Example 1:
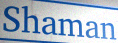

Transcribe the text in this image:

Shaman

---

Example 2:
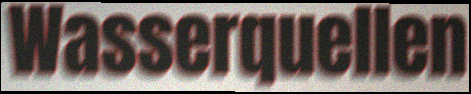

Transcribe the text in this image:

Wasserquellen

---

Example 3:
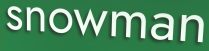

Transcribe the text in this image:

snowman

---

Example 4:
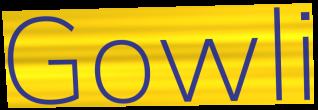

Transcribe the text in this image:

Gowli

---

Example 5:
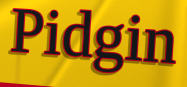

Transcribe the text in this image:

Pidgin